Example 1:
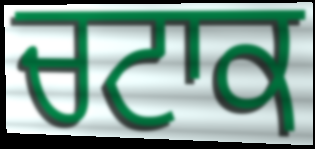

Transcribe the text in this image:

ਚਟਾਕ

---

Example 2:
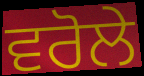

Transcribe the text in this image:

ਵਰੋਲੇ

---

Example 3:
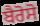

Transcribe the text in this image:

ਬੈਰੋਸੋ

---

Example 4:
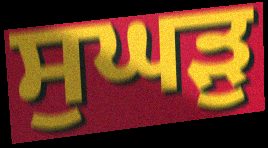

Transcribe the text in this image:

ਸੁਘੜੁ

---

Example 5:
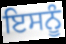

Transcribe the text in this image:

ਇਸਨੂੰ